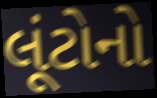
લૂંટોનો